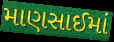
માણસાઈમાં